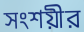
সংশয়ীর